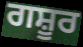
ਗਸ਼ੂਰ